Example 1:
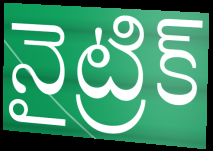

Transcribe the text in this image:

నైట్రిక్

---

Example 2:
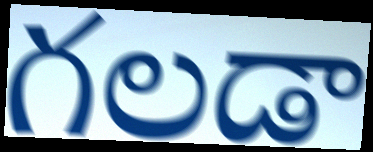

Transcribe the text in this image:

గలడా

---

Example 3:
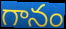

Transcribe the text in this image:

గానం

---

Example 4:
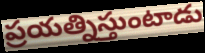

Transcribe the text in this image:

ప్రయత్నిస్తుంటాడు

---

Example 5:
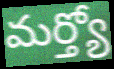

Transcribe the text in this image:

మర్త్యో